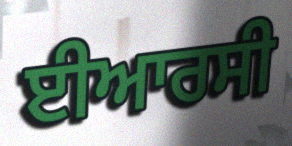
ਈਆਰਸੀ